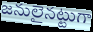
జనులైనట్టుగా